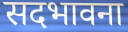
सदभावना